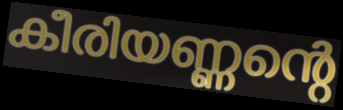
കീരിയണ്ണന്റെ